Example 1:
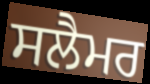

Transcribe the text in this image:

ਸਲੈਮਰ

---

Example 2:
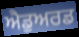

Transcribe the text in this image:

ਐਡੁਅਰਡ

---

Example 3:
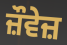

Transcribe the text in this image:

ਜ਼ੌਵੇਜ਼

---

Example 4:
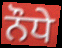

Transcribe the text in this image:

ਨੌਧੇ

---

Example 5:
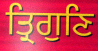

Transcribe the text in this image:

ਤ੍ਰਿਗੁਣਿ